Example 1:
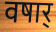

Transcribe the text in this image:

वषार्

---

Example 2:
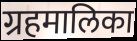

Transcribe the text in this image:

ग्रहमालिका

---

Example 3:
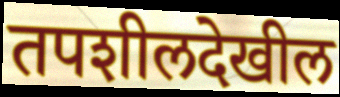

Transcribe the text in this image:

तपशीलदेखील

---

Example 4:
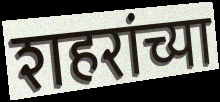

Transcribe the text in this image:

शहरांच्या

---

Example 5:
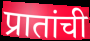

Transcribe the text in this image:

प्रातांची